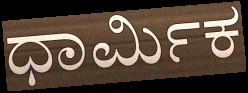
ಧಾರ್ಮಿಕ